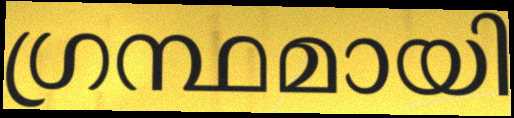
ഗ്രന്ഥമായി